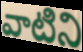
వాటిని